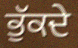
ਭੁੱਕਦੇ